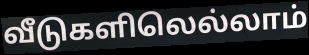
வீடுகளிலெல்லாம்